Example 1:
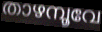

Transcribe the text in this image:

താഴമ്പൂവേ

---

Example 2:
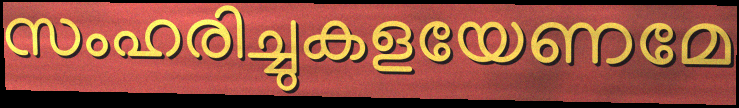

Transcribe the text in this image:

സംഹരിച്ചുകളയേണമേ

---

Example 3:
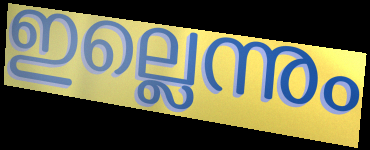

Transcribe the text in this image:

ഇല്ലെന്നും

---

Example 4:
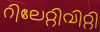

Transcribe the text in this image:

റിലേറ്റിവിറ്റി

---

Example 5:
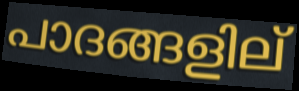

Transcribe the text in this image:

പാദങ്ങളില്